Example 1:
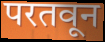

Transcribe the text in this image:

परतवून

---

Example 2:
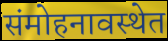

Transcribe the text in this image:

संमोहनावस्थेत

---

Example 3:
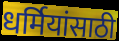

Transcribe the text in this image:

धर्मियांसाठी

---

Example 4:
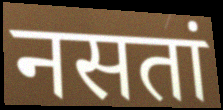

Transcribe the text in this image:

नसतां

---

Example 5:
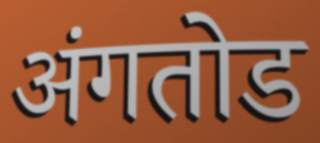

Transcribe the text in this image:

अंगतोड